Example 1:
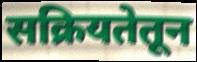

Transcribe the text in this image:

सक्रियतेतून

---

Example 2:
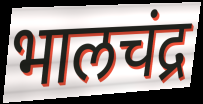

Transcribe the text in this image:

भालचंद्र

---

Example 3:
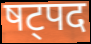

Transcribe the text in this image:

षट्पद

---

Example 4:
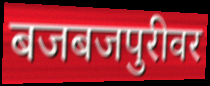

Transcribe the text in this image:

बजबजपुरीवर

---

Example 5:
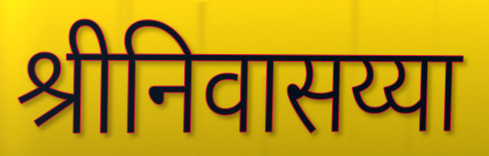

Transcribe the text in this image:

श्रीनिवासय्या